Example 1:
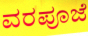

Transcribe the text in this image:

ವರಪೂಜೆ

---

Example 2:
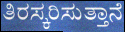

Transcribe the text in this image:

ತಿರಸ್ಕರಿಸುತ್ತಾನೆ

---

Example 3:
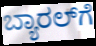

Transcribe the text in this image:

ಬ್ಯಾರಲ್‌ಗೆ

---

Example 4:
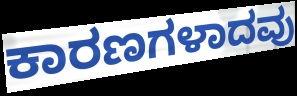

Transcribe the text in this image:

ಕಾರಣಗಳಾದವು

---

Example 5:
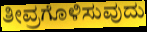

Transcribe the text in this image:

ತೀವ್ರಗೊಳಿಸುವುದು